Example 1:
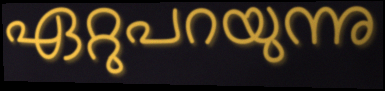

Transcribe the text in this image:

ഏറ്റുപറയുന്നു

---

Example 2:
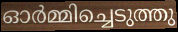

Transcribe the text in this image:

ഓർമ്മിച്ചെടുത്തു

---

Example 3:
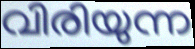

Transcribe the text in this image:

വിരിയുന്ന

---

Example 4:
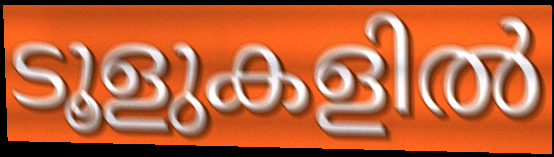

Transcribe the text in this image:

ടൂളുകളിൽ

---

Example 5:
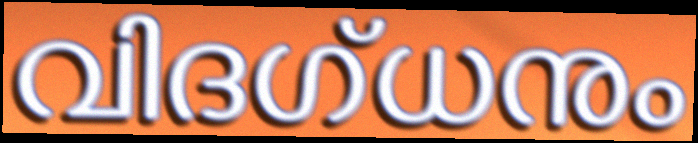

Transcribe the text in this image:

വിദഗ്ധനും